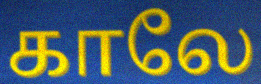
காலே